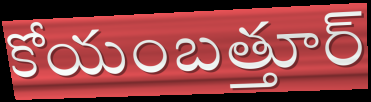
కోయంబత్తూర్